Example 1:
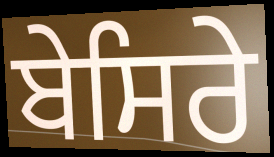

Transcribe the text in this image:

ਬੇਸਿਰੇ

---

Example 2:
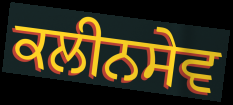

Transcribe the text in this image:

ਕਲੀਨਸੇਵ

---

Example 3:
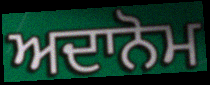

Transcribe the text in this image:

ਅਦਾਨੋਮ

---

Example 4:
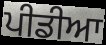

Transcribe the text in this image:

ਪੀਡੀਆ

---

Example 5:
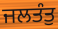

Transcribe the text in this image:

ਜਲਤੰਤੁ